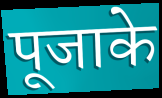
पूजाके